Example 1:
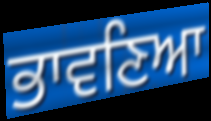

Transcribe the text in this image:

ਭਾਵਣਿਆ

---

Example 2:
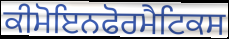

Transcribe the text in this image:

ਕੀਮੋਇਨਫੋਰਮੈਟਿਕਸ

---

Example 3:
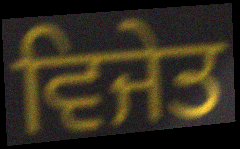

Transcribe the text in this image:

ਵਿਜੇਤ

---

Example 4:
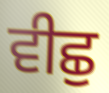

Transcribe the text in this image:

ਵੀਛੁ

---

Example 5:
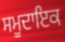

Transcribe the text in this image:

ਸਮੂਦਾਇਕ